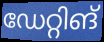
ഡേറ്റിങ്